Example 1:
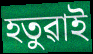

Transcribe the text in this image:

হতুৱাই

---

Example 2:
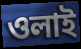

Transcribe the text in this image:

ওলাই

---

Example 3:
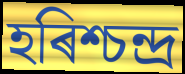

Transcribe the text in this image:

হৰিশ্চন্দ্ৰ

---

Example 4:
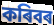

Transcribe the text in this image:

কৰিবৰ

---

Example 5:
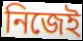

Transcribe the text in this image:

নিজেই